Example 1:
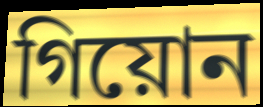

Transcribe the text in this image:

গিয়োন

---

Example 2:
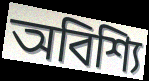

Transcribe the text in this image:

অবিশ্যি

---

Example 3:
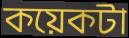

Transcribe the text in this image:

কয়েকটা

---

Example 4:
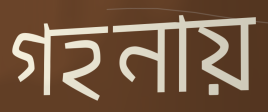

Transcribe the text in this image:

গহনায়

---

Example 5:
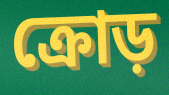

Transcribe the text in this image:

ক্রোড়